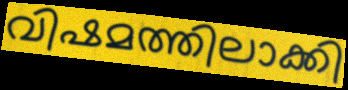
വിഷമത്തിലാക്കി